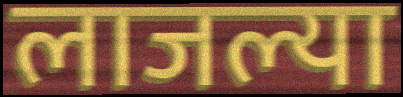
लाजल्या